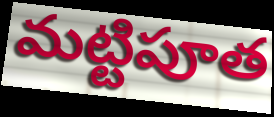
మట్టిపూత